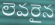
లెవరైన